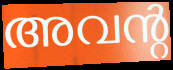
അവന്റ